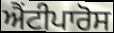
ਐਂਟੀਪਾਰੋਸ